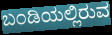
ಬಂಡಿಯಲ್ಲಿರುವ